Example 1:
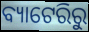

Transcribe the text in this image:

ବ୍ୟାଟେରିରୁ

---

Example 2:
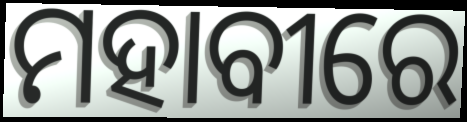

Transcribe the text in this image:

ମହାବୀରେ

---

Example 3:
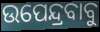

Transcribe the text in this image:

ଉପେନ୍ଦ୍ରବାବୁ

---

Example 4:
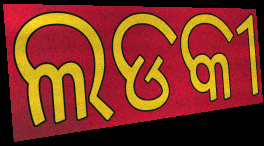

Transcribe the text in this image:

ଲଡକୀ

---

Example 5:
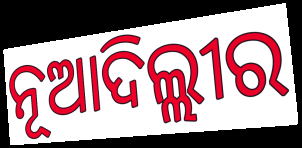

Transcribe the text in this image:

ନୂଆଦିଲ୍ଲୀର